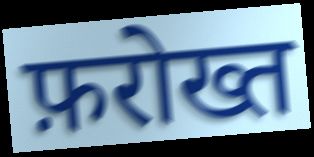
फ़रोख्त